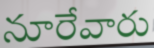
నూరేవారు